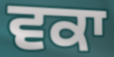
ਵਕਾ